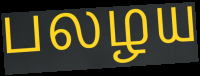
பலழய